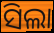
ସିଲା